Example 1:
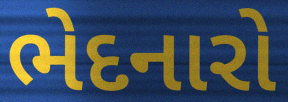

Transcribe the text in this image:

ભેદનારો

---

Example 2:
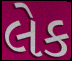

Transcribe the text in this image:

લેક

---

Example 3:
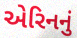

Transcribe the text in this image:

એરિનનું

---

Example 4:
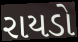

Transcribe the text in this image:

રાયડો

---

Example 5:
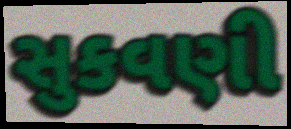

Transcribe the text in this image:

સુકવણી